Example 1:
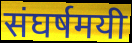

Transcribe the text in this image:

संघर्षमयी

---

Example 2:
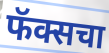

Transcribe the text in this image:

फॅक्सचा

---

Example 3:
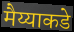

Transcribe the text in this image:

मैय्याकडे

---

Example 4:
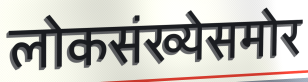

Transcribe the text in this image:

लोकसंख्येसमोर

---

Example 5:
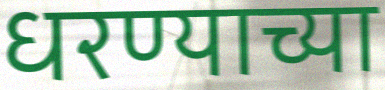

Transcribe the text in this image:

धरण्याच्या